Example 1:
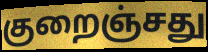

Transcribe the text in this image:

குறைஞ்சது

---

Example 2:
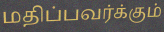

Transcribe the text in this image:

மதிப்பவர்க்கும்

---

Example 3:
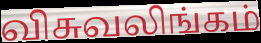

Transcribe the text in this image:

விசுவலிங்கம்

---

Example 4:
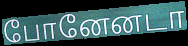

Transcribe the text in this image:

போனேனடா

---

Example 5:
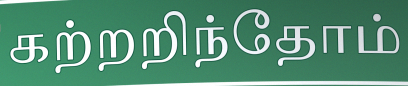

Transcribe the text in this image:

கற்றறிந்தோம்